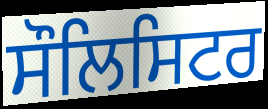
ਸੌਲਿਸਿਟਰ